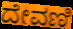
ದೇವಣಿ